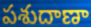
పశుదాణా